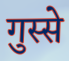
गुस्से